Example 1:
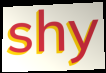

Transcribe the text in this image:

shy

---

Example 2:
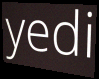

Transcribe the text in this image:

yedi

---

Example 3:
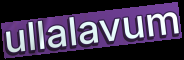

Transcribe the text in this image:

ullalavum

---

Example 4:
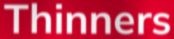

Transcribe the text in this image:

Thinners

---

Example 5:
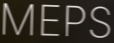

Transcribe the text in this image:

MEPS